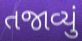
તજાવ્યું